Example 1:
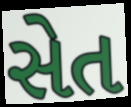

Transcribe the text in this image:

સેત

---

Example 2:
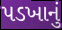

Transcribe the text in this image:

પડખાનું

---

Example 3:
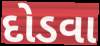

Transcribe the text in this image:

દોડવા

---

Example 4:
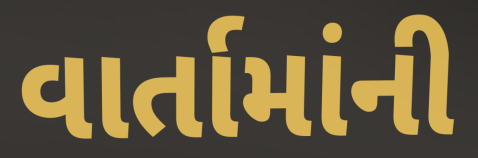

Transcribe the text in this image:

વાર્તામાંની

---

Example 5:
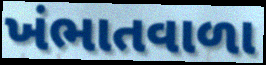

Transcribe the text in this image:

ખંભાતવાળા